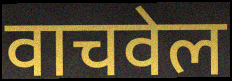
वाचवेल